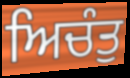
ਅਿਚੰਤੁ